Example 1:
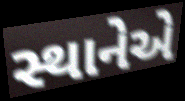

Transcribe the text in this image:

સ્થાનેએ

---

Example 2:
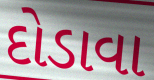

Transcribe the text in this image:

દોડાવા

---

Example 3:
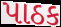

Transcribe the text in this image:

પાઠક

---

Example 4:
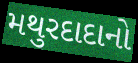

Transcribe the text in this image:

મથુરદાદાનો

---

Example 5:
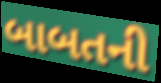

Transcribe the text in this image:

બાબતની